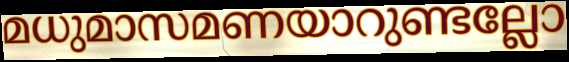
മധുമാസമണയാറുണ്ടല്ലോ